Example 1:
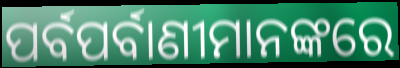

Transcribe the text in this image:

ପର୍ବପର୍ବାଣୀମାନଙ୍କରେ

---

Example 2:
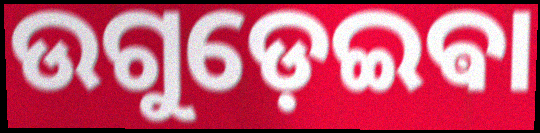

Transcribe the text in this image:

ଉଗୁଡ଼େଇଵା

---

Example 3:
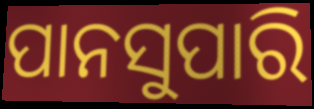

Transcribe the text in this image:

ପାନସୁପାରି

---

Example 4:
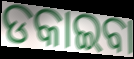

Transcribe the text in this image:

ଡକାଇବା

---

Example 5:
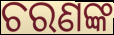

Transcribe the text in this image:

ଚରଣଙ୍କ